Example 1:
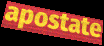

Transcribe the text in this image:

apostate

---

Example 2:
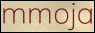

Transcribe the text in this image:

mmoja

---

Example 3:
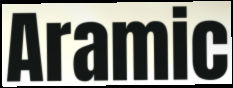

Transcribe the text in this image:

Aramic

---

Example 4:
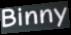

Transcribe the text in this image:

Binny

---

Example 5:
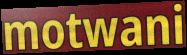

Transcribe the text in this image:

motwani